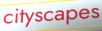
cityscapes